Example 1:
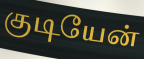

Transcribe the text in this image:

குடியேன்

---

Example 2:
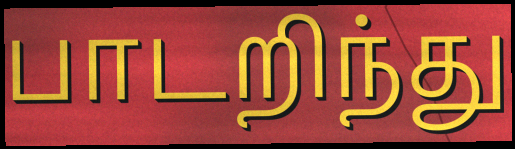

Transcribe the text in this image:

பாடறிந்து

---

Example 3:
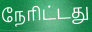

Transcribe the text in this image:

நேரிட்டது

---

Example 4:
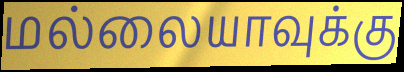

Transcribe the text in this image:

மல்லையாவுக்கு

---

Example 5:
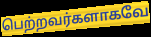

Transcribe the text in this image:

பெற்றவர்களாகவே